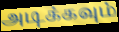
அடிக்கவும்